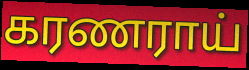
கரணராய்